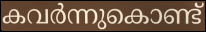
കവർന്നുകൊണ്ട്